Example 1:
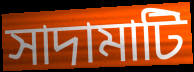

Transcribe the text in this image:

সাদামাটি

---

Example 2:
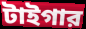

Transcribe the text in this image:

টাইগার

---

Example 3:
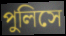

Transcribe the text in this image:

পুলিসে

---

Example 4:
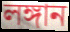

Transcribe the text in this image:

লঙ্গান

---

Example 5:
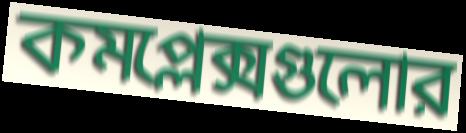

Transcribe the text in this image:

কমপ্লেক্সগুলোর